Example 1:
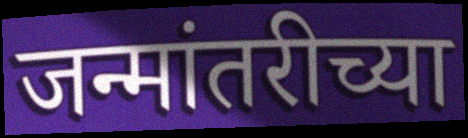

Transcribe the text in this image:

जन्मांतरीच्या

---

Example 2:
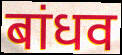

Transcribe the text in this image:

बांधव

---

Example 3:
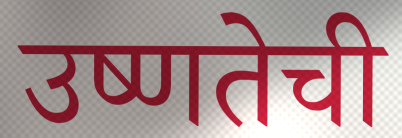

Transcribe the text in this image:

उष्णतेची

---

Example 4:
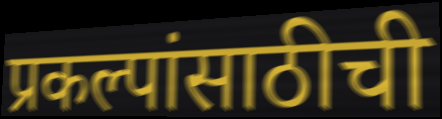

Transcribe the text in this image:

प्रकल्पांसाठीची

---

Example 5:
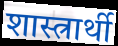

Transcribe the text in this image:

शास्त्रार्थी